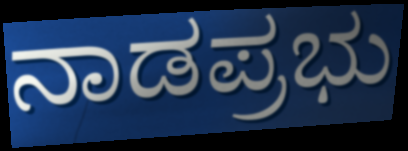
ನಾಡಪ್ರಭು